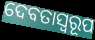
ଦେବତାସ୍ୱରୂପ